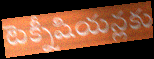
టెక్నీషియన్లకు